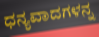
ಧನ್ಯವಾದಗಳನ್ನ